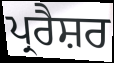
ਪ੍ਰਰੈਸ਼ਰ